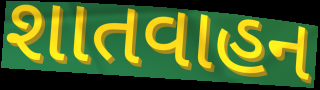
શાતવાહન